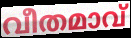
വീതമാവ്